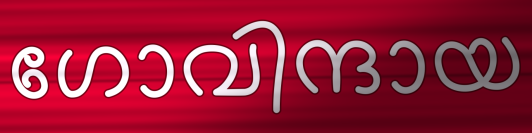
ഗോവിന്ദായ